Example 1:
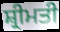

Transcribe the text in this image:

ਸ਼੍ਰੀਮਤੀ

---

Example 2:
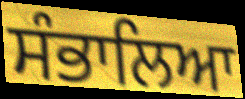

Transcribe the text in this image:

ਸੰਭਾਲਿਆ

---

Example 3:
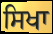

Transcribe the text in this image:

ਸਿਖਾ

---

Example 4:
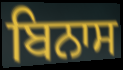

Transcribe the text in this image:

ਬਿਨਾਸ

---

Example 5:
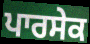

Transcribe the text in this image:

ਪਾਰਸੇਕ